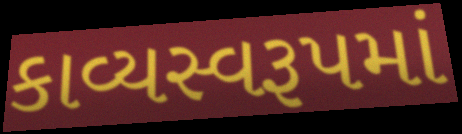
કાવ્યસ્વરૂપમાં